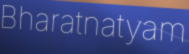
Bharatnatyam